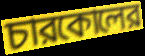
চারকোলের